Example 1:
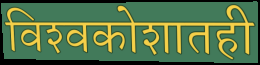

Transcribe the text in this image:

विश्वकोशातही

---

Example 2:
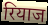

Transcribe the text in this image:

रियाज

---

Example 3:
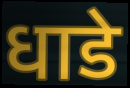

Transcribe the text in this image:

धाडे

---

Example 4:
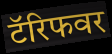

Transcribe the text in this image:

टॅरिफवर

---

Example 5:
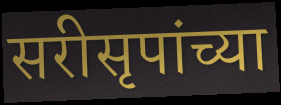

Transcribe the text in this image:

सरीसृपांच्या